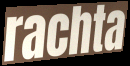
rachta